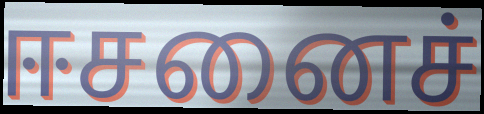
ஈசனைச்